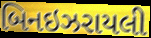
બિનઇઝરાયલી